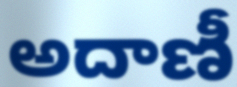
అదాణీ